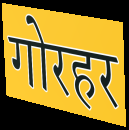
गोरहर